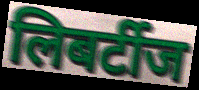
लिबर्टीज